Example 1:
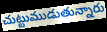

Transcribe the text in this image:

చుట్టుముడుతున్నారు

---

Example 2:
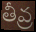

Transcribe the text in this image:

తీవ్ర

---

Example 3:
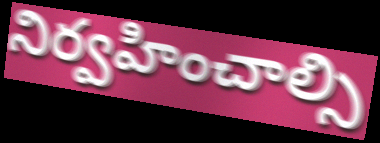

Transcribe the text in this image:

నిర్వహించాల్సి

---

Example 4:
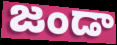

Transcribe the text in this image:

జండా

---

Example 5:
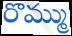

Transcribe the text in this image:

రొమ్ము